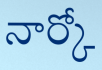
నార్కో